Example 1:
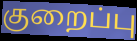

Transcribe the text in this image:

குறைப்பு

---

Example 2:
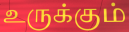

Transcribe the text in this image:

உருக்கும்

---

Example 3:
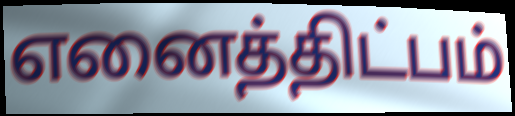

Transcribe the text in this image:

எனைத்திட்பம்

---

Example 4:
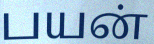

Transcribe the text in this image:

பயன்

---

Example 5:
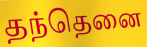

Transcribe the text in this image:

தந்தெனை